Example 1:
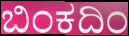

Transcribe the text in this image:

ಬಿಂಕದಿಂ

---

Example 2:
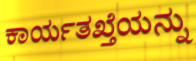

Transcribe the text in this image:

ಕಾರ್ಯತಖ್ತೆಯನ್ನು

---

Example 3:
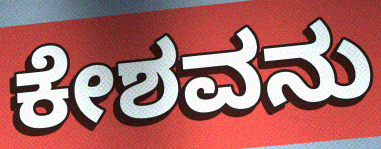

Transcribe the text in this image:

ಕೇಶವನು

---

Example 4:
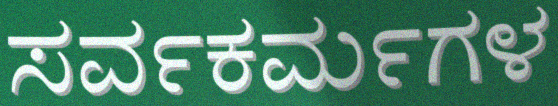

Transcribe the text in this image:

ಸರ್ವಕರ್ಮಗಳ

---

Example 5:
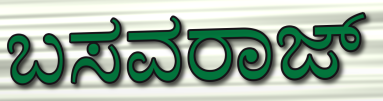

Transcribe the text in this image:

ಬಸವರಾಜ್